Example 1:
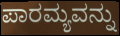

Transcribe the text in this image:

ಪಾರಮ್ಯವನ್ನು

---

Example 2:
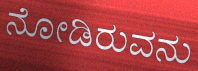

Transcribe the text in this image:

ನೋಡಿರುವನು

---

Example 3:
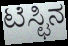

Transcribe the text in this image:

ಟೆಸ್ಟಿನ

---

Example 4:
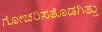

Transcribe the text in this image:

ಗೋಚರಿಸತೊಡಗಿತ್ತು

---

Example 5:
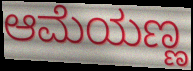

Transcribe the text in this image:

ಆಮೆಯಣ್ಣ